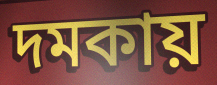
দমকায়